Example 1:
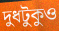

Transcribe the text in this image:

দুধটুকুও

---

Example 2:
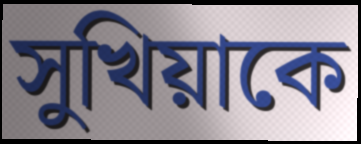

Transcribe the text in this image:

সুখিয়াকে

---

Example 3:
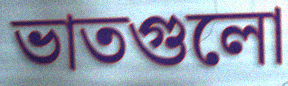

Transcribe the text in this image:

ভাতগুলো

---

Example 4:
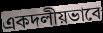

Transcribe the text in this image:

একদলীয়ভাবে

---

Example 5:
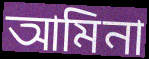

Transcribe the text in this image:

আমিনা